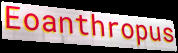
Eoanthropus